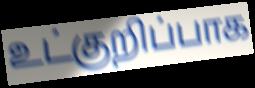
உட்குறிப்பாக